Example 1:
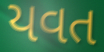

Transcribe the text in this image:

યવત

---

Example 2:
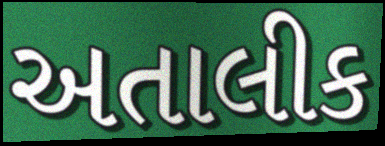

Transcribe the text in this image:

અતાલીક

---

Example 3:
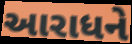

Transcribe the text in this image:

આરાધને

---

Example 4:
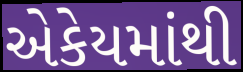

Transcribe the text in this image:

એકેયમાંથી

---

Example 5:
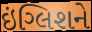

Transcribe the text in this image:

ઇંગ્લિશને